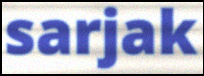
sarjak